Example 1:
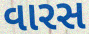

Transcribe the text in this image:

વારસ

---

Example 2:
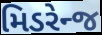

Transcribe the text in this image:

મિડરેન્જ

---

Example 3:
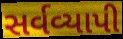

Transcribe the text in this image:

સર્વવ્યાપી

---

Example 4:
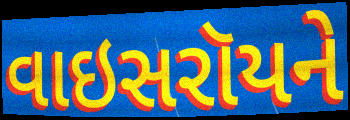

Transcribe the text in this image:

વાઇસરૉયને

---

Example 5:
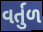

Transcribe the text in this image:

વર્તુળ